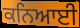
ਕਨਿਆਈ